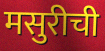
मसुरीची